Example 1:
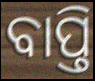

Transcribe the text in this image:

ବାପ୍ତି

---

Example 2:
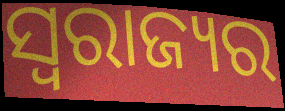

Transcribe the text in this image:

ସ୍ବରାଜ୍ୟର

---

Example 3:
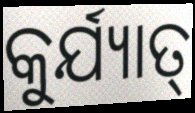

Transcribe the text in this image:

କୁର୍ଯ୍ୟାତ୍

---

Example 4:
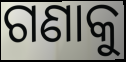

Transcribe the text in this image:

ଗଣାକୁ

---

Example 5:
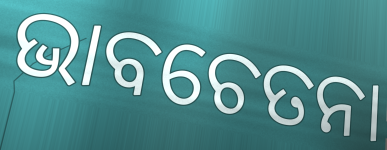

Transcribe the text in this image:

ଭାବଚେତନା